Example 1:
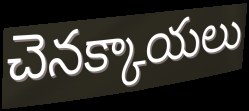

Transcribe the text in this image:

చెనక్కాయలు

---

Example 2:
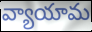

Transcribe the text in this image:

వ్యాయామ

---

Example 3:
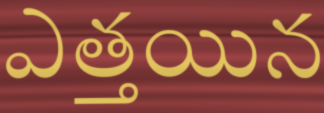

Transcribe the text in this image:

ఎత్తయిన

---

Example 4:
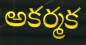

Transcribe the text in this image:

అకర్మక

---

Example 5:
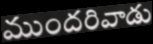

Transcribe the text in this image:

ముందరివాడు